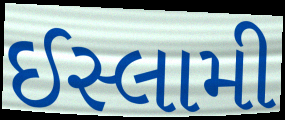
ઈસ્લામી